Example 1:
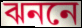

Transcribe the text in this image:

ঝননে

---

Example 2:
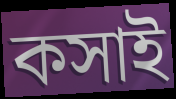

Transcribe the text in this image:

কসাই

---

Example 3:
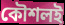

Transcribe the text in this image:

কৌশলই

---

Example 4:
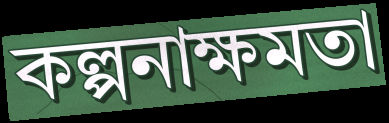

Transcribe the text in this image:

কল্পনাক্ষমতা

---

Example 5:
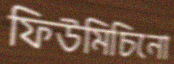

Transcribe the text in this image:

ফিউমিচিনো